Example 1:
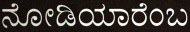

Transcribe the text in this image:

ನೋಡಿಯಾರೆಂಬ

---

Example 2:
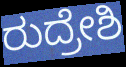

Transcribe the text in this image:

ರುದ್ರೇಶಿ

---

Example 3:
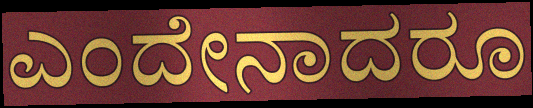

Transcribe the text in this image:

ಎಂದೇನಾದರೂ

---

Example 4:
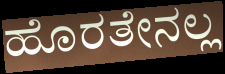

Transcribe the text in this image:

ಹೊರತೇನಲ್ಲ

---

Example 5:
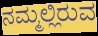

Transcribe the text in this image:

ನಮ್ಮಲ್ಲಿರುವ